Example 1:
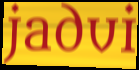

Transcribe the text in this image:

jadui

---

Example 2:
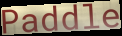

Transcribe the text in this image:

Paddle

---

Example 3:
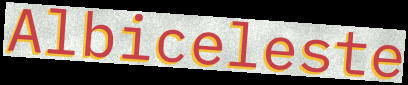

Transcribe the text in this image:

Albiceleste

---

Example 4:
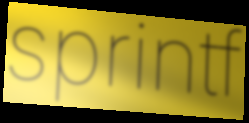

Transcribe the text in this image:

sprintf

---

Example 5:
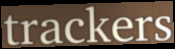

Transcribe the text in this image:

trackers